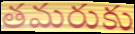
తమరుకు